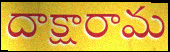
దాక్షారామ